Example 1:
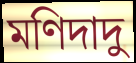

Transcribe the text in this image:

মণিদাদু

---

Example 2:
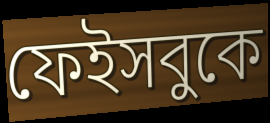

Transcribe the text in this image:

ফেইসবুকে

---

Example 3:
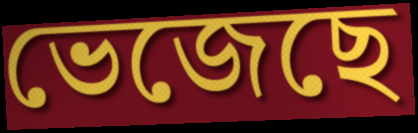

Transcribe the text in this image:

ভেজেছে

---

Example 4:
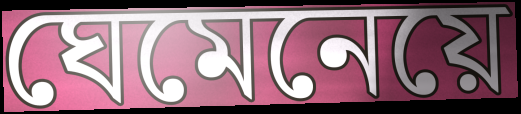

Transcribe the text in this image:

ঘেমেনেয়ে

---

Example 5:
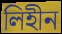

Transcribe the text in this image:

লিহীন